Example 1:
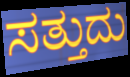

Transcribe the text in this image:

ಸತ್ತುದು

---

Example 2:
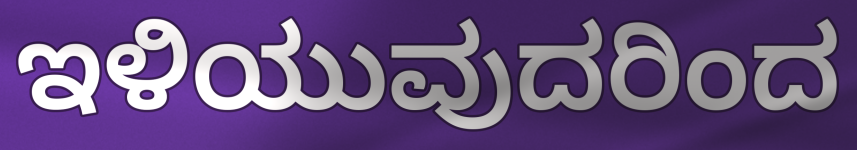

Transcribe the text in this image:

ಇಳಿಯುವುದರಿಂದ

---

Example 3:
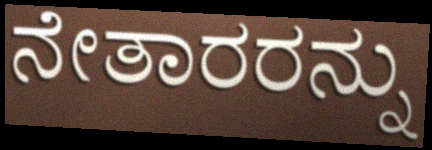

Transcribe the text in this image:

ನೇತಾರರನ್ನು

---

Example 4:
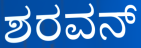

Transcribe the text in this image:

ಶರವನ್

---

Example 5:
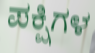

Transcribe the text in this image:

ಪಕ್ಷಿಗಳ